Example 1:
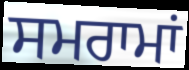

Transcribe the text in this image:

ਸਮਰਾਮਾਂ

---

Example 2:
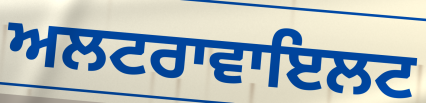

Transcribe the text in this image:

ਅਲਟਰਾਵਾਇਲਟ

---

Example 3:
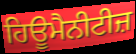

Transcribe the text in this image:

ਹਿਊਮੈਨੀਟੀਜ਼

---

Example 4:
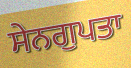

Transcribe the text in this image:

ਸੇਨਗੁਪਤਾ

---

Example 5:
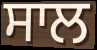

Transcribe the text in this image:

ਸਾਲ